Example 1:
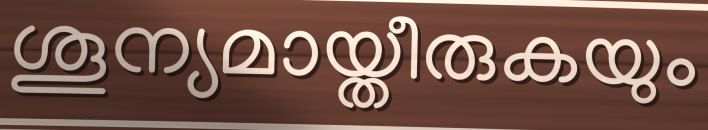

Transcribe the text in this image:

ശൂന്യമായ്തീരുകയും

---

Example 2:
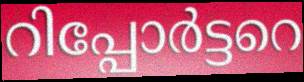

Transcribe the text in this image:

റിപ്പോർട്ടറെ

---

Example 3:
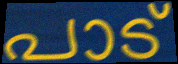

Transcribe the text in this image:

പാട്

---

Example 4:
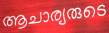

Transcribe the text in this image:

ആചാര്യരുടെ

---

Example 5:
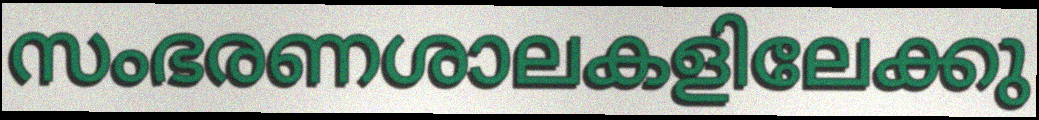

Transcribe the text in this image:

സംഭരണശാലകളിലേക്കു